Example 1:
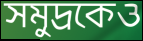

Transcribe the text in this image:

সমুদ্রকেও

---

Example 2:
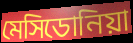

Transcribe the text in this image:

মেসিডোনিয়া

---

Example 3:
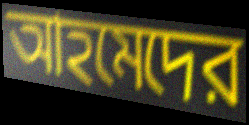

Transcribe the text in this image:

আহমেদের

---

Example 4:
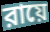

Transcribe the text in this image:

রায়ে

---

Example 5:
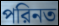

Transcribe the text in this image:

পরিনত